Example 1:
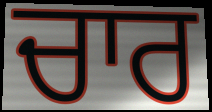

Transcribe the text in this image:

ਚਾਰ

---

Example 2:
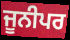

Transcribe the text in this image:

ਜੂਨੀਪਰ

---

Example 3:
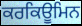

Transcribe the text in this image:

ਕਰਕਿਊਮਿਨ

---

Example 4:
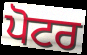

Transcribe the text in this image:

ਪੋਟਰ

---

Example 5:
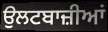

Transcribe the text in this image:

ਉਲਟਬਾਜ਼ੀਆਂ